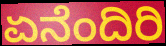
ಏನೆಂದಿರಿ